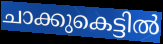
ചാക്കുകെട്ടിൽ